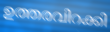
ഉത്തരവിറക്കി